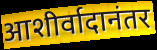
आशीर्वादानंतर